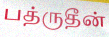
பத்ருதீன்